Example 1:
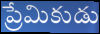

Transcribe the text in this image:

ప్రేమికుడు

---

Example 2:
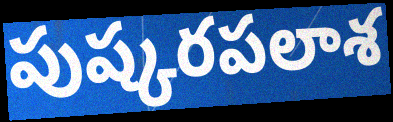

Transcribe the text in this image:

పుష్కరపలాశ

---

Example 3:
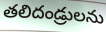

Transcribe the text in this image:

తలిదండ్రులను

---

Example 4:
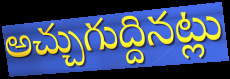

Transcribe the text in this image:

అచ్చుగుద్దినట్లు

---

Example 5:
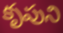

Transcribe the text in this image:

కృపుని